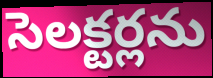
సెలక్టర్లను